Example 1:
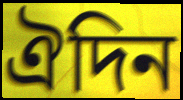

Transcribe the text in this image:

ঐদিন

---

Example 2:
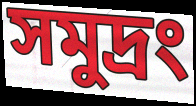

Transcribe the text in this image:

সমুদ্রং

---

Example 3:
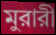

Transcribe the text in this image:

মুরারী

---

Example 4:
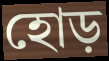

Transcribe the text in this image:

হোড়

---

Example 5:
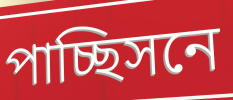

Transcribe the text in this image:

পাচ্ছিসনে